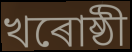
খৰোষ্ঠী